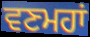
ਵਣਮਹਾਂ